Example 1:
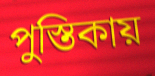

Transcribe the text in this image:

পুস্তিকায়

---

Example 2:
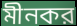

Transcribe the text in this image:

মীনকর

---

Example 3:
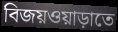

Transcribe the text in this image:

বিজয়ওয়াড়াতে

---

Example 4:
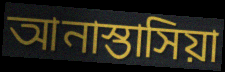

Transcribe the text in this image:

আনাস্তাসিয়া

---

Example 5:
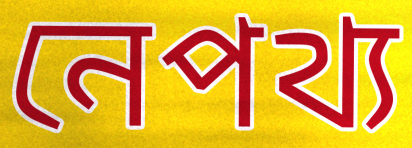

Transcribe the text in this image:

নেপথ্য